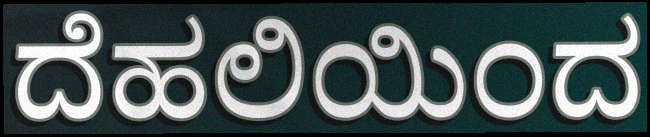
ದೆಹಲಿಯಿಂದ